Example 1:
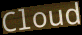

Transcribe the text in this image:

Cloud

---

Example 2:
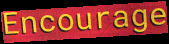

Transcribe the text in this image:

Encourage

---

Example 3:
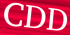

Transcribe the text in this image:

CDD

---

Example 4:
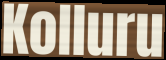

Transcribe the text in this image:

Kolluru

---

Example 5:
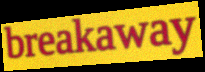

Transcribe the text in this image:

breakaway